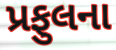
પ્રફુલના